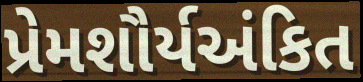
પ્રેમશૌર્યઅંકિત